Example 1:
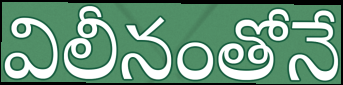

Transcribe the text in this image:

విలీనంతోనే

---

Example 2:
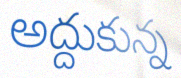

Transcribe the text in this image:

అద్దుకున్న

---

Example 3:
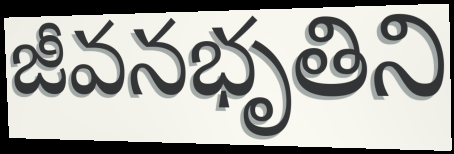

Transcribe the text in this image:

జీవనభృతిని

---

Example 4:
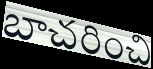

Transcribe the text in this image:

బాచరించి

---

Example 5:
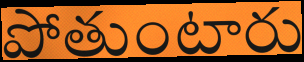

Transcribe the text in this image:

పోతుంటారు